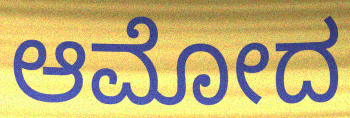
ಆಮೋದ